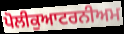
ਪੋਲੀਕੁਆਟਰਨੀਅਮ